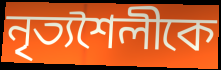
নৃত্যশৈলীকে